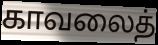
காவலைத்